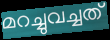
മറച്ചുവച്ചത്